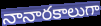
నానారకాలుగా